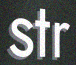
str